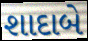
શાદાબે